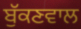
ਬੁੱਕਣਵਾਲ